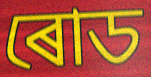
ৰোড